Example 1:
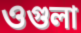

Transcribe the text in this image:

ওগুলা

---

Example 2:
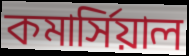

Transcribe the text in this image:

কমার্সিয়াল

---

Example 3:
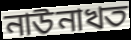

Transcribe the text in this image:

নাউনাখত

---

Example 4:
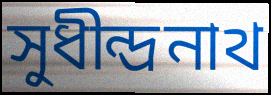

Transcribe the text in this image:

সুধীন্দ্রনাথ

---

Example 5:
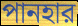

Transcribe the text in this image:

পানহার